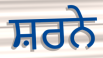
ਸ਼ਰਨੇ